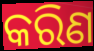
କରିଣ